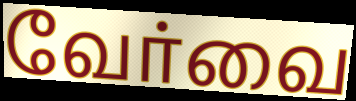
வேர்வை